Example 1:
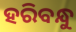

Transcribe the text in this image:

ହରିବନ୍ଧୁ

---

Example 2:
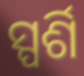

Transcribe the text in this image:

ସ୍ପର୍ଶି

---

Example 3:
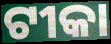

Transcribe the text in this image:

ଟୀକା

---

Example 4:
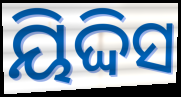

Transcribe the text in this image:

ୟିଦ୍ଦିସ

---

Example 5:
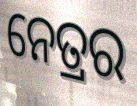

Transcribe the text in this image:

ନେତ୍ରର